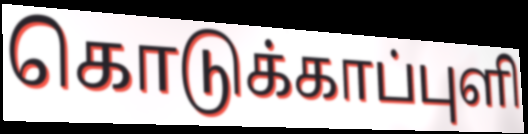
கொடுக்காப்புளி